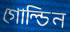
গোল্ডিন